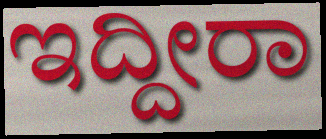
ಇದ್ದೀರಾ